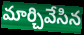
మార్చివేసిన